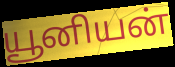
யூனியன்